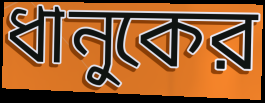
ধানুকের